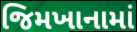
જિમખાનામાં